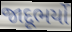
જાદૂભર્યો